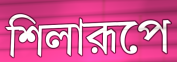
শিলারূপে